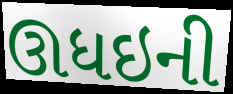
ઊધઇની